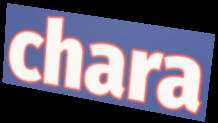
chara